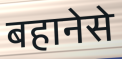
बहानेसे